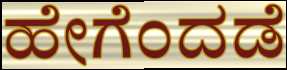
ಹೇಗೆಂದಡೆ